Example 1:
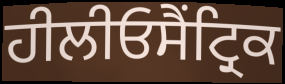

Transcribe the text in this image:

ਹੀਲੀਓਸੈਂਟ੍ਰਿਕ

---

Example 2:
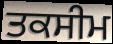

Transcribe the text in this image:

ਤਕਸੀਮ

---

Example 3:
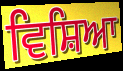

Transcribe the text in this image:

ਵਿਸ਼ਿਆ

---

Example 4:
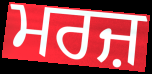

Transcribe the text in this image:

ਮਰਜ਼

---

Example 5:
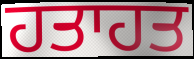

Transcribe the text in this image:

ਹਤਾਹਤ